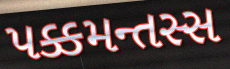
પક્કમન્તસ્સ